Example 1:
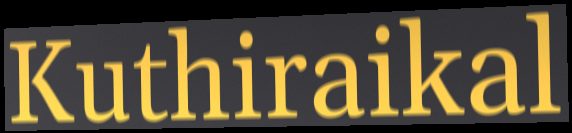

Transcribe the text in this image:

Kuthiraikal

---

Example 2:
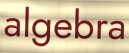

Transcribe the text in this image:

algebra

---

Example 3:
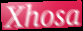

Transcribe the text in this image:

Xhosa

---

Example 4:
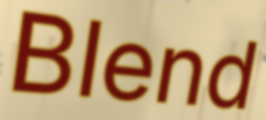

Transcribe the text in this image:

Blend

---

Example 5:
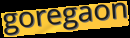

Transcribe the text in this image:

goregaon